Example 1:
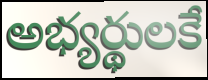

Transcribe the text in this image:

అభ్యర్థులకే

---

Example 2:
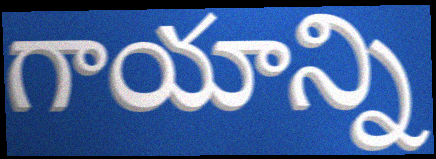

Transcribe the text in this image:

గాయాన్ని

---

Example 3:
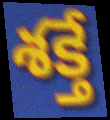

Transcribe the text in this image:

శక్తే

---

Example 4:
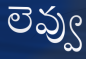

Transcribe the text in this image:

లెవ్వు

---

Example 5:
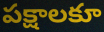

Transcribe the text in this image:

పక్షాలకూ